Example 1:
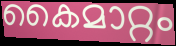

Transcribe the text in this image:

കൈമാറ്റം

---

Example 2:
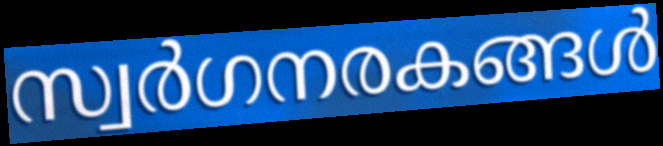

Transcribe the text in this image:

സ്വർഗനരകങ്ങൾ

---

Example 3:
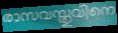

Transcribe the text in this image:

രാസവസ്തുവിനെ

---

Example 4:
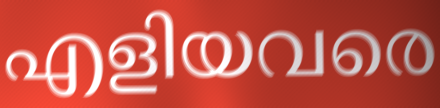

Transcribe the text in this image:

എളിയവരെ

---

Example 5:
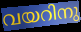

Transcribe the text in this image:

വയറിനു